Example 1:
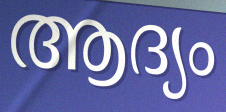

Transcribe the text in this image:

ആദ്യം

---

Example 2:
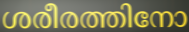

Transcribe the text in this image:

ശരീരത്തിനോ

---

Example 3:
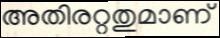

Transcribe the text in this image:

അതിരറ്റതുമാണ്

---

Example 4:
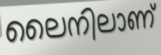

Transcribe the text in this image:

ലൈനിലാണ്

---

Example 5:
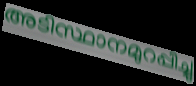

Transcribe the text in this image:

അടിസ്ഥാനമുറപ്പിച്ചു